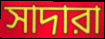
সাদারা